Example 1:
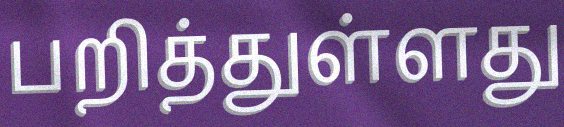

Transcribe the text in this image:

பறித்துள்ளது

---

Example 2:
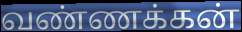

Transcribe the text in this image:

வண்ணக்கன்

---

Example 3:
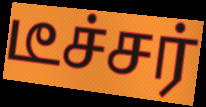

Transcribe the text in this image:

டீச்சர்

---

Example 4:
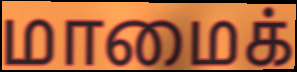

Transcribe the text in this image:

மாமைக்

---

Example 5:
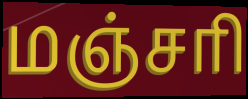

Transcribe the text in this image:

மஞ்சரி